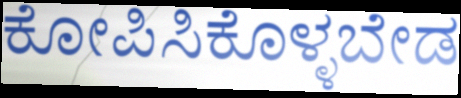
ಕೋಪಿಸಿಕೊಳ್ಳಬೇಡ